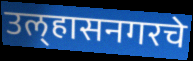
उल्हासनगरचे